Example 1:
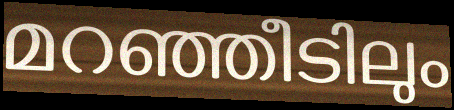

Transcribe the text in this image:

മറഞ്ഞീടിലും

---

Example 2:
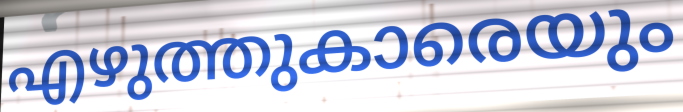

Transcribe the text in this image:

എഴുത്തുകാരെയും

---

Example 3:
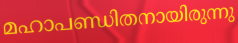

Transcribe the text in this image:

മഹാപണ്ഡിതനായിരുന്നു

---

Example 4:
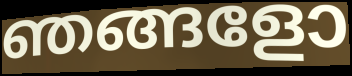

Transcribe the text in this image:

ഞങ്ങളോ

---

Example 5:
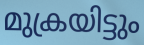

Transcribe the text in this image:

മുക്രയിട്ടും